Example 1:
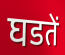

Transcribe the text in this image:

घडतें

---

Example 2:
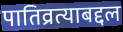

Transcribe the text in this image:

पातिव्रत्याबद्दल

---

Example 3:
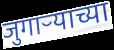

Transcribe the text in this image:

जुगाऱ्याच्या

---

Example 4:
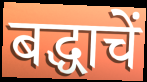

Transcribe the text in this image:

बद्धाचें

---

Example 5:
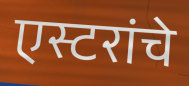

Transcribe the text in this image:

एस्टरांचे